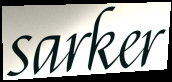
sarker